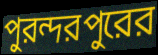
পুরন্দরপুরের